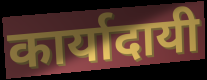
कार्यादायी